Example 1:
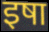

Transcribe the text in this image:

इषा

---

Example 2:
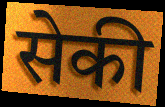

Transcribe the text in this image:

सेकी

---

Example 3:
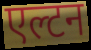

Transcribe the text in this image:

एल्टन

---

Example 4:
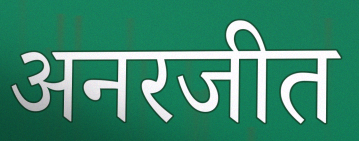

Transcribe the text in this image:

अनरजीत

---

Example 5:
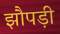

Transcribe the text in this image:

झौपड़ी